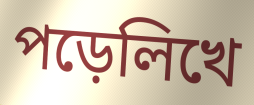
পড়েলিখে